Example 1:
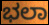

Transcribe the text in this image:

ಭಲಾ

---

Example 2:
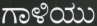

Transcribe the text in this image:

ಗಾಳಿಯು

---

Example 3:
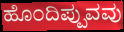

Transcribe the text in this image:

ಹೊಂದಿಪ್ಪುವವು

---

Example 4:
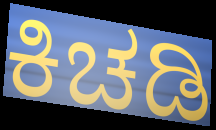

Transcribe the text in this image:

ಕಿಚಡಿ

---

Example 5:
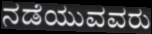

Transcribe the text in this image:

ನಡೆಯುವವರು